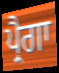
ਪ੍ਰੈਗਾ